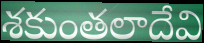
శకుంతలాదేవి